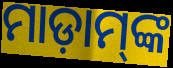
ମାଡ଼ାମ୍‌ଙ୍କ